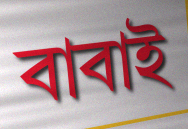
বাবাই